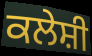
ਕਲੇਸ਼ੀ